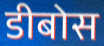
डीबोस